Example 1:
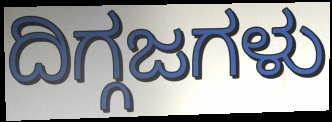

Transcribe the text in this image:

ದಿಗ್ಗಜಗಳು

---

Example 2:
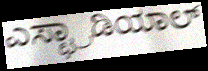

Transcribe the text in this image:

ಎಸ್ಟ್ರಾಡಿಯಾಲ್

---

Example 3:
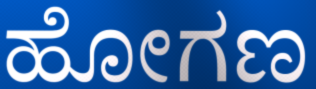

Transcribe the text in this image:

ಹೋಗಣ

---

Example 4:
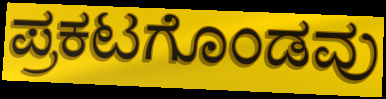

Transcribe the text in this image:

ಪ್ರಕಟಗೊಂಡವು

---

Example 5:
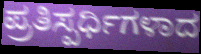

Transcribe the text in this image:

ಪ್ರತಿಸ್ಪರ್ಧಿಗಳಾದ